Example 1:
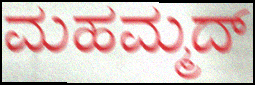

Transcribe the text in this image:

ಮಹಮ್ಮದ್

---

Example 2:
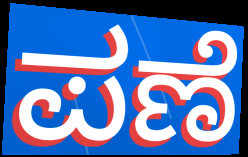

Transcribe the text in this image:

ಪಣೆ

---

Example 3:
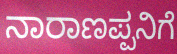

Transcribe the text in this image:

ನಾರಾಣಪ್ಪನಿಗೆ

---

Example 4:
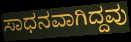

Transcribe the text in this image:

ಸಾಧನವಾಗಿದ್ದವು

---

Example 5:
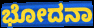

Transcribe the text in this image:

ಭೋದನಾ